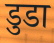
डुडा